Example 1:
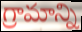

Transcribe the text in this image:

గ్రామాన్ని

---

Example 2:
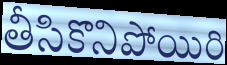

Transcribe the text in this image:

తీసికొనిపోయిరి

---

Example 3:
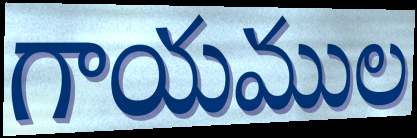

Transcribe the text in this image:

గాయముల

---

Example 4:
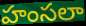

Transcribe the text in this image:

హంసలా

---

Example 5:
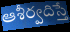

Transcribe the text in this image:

ఆశీర్వదిస్తే